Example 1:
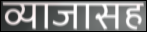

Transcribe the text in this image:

व्याजासह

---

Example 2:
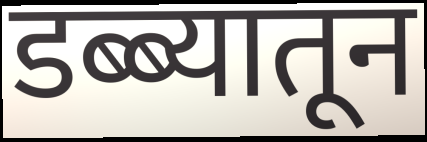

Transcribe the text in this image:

डब्ब्यातून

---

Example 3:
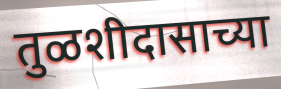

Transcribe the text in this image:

तुळशीदासाच्या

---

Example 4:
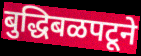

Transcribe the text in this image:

बुद्धिबळपटूने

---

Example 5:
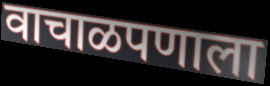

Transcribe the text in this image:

वाचाळपणाला